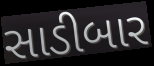
સાડીબાર